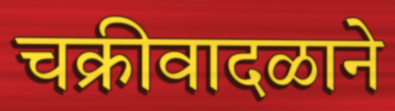
चक्रीवादळाने